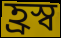
হ্রস্ব